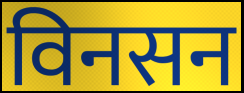
विनसन